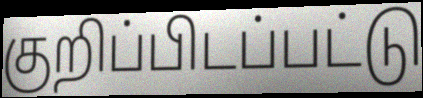
குறிப்பிடப்பட்டு